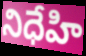
నిధేహి